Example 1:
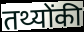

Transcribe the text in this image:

तथ्योंकी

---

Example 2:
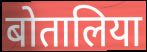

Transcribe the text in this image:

बोतालिया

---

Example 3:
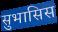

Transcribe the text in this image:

सुभासिस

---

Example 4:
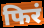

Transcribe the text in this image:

फिरं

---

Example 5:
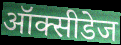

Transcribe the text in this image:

ऑक्सीडेज